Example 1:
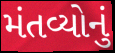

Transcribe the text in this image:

મંતવ્યોનું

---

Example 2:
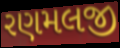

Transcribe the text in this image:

રણમલજી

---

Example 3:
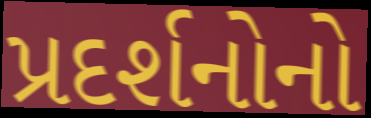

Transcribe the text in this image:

પ્રદર્શનોનો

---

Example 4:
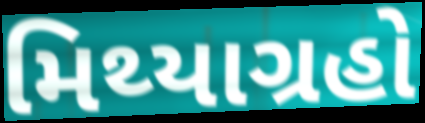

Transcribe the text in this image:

મિથ્યાગ્રહો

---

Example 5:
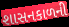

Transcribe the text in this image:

શાસનકાળની